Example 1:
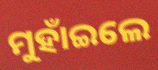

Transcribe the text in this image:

ମୁହାଁଇଲେ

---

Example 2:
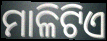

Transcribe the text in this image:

ମାଳିଟିଏ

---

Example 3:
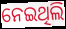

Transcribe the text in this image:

ନେଇଥିଲି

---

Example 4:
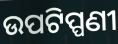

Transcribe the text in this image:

ଉପଟିପ୍ପଣୀ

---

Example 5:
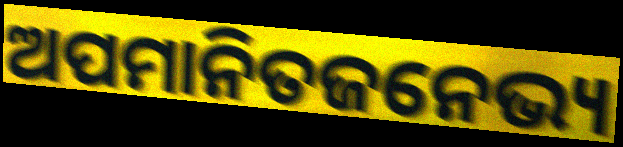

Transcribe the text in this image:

ଅପମାନିତଜନେଭ୍ୟ